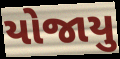
યોજાયુ